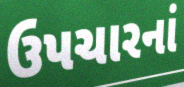
ઉપચારનાં